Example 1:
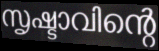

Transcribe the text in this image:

സൃഷ്ടാവിന്റെ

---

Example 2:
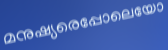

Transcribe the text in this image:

മനുഷ്യരെപ്പോലെയോ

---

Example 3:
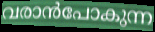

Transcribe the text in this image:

വരാൻപോകുന്ന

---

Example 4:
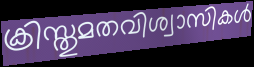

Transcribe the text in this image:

ക്രിസ്തുമതവിശ്വാസികൾ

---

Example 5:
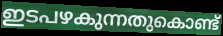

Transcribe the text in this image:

ഇടപഴകുന്നതുകൊണ്ട്